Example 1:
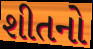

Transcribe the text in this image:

શીતનો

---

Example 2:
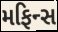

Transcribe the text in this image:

મફિન્સ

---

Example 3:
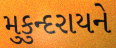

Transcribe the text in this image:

મુકુન્દરાયને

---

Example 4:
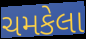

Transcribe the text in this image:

ચમકેલા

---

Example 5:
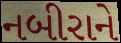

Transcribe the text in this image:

નબીરાને